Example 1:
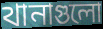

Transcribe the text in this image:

থানাগুলো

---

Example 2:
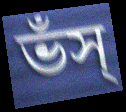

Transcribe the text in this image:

ভঁস্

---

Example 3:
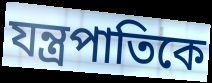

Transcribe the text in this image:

যন্ত্রপাতিকে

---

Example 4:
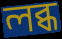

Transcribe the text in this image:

লব্ধ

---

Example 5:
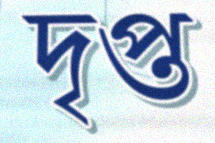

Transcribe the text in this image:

দৃপ্ত